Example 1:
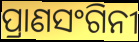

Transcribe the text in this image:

ପ୍ରାଣସଂଗିନୀ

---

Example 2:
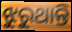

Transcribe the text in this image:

ଝୁରୁଥାନ୍ତି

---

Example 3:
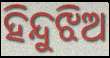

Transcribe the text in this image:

ହିନ୍ଦୁଝିଅ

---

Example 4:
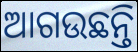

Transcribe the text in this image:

ଆଗଉଛନ୍ତି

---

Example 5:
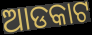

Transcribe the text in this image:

ଆଡକାଟ